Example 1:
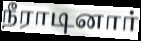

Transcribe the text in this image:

நீராடினார்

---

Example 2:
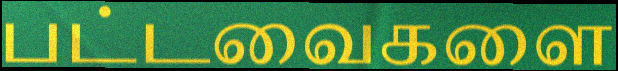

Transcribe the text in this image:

பட்டவைகளை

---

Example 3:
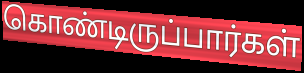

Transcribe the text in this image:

கொண்டிருப்பார்கள்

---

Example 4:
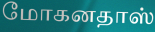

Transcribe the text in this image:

மோகனதாஸ்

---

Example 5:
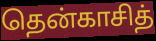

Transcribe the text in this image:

தென்காசித்